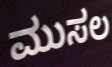
ಮುಸಲ